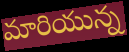
మారియున్న